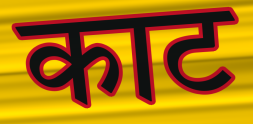
काट